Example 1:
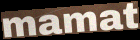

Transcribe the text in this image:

mamat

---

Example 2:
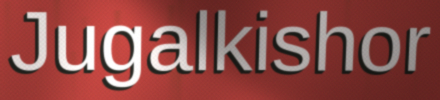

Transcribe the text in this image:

Jugalkishor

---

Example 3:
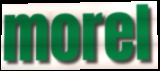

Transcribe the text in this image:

morel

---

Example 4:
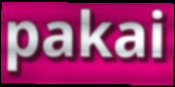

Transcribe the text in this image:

pakai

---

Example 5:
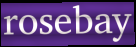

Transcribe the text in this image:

rosebay